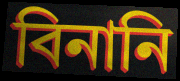
বিনানি